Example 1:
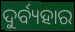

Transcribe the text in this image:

ଦୁର୍ବ୍ୟହାର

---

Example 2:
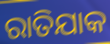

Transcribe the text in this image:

ରାତିଯାକ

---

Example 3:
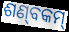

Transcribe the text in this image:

ଶଣ୍‌ବକମ୍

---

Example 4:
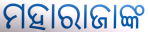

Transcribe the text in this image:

ମହାରାଜାଙ୍କ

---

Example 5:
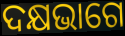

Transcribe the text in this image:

ଦକ୍ଷଭାଗେ